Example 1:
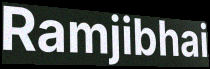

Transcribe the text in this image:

Ramjibhai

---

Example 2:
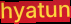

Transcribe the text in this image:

hyatun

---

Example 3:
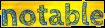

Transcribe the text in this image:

notable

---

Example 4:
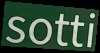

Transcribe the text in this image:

sotti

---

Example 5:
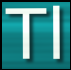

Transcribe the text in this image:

Tl